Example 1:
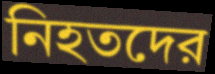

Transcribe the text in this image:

নিহতদের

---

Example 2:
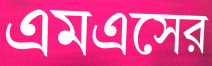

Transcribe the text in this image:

এমএসের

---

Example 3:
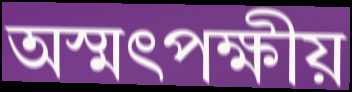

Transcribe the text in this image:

অস্মৎপক্ষীয়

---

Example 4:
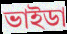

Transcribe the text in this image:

ভাইডা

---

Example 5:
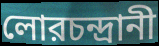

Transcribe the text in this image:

লোরচন্দ্রানী